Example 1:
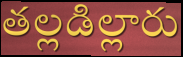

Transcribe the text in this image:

తల్లడిల్లారు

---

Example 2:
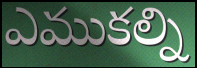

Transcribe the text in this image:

ఎముకల్ని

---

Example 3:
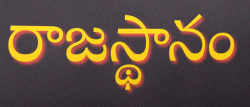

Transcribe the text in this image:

రాజస్థానం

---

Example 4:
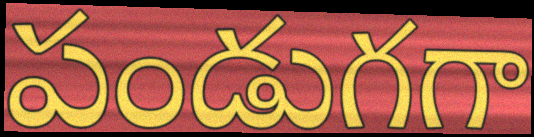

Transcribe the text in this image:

పండుగగా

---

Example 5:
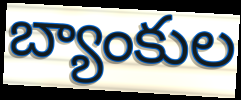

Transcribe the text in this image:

బ్యాంకుల